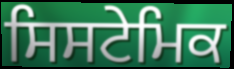
ਸਿਸਟੇਮਿਕ